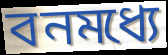
বনমধ্যে